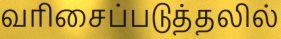
வரிசைப்படுத்தலில்